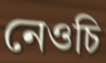
নেওচি